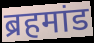
ब्रहमांड